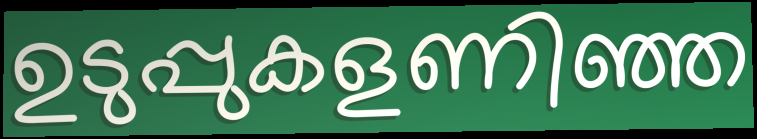
ഉടുപ്പുകളണിഞ്ഞ